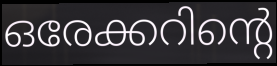
ഒരേക്കറിന്റെ